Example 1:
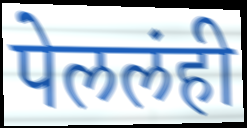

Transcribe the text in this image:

पेललंही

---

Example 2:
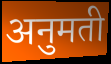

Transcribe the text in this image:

अनुमती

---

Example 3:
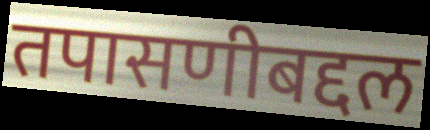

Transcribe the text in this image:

तपासणीबद्दल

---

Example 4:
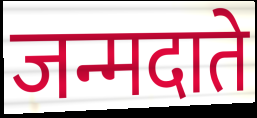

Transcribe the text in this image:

जन्मदाते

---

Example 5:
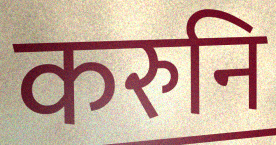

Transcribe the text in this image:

करुनि